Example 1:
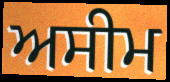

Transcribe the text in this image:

ਅਸੀਮ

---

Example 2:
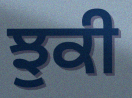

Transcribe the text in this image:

ਝੁਕੀ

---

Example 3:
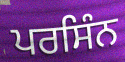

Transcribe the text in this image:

ਪਰਸਿੰਨ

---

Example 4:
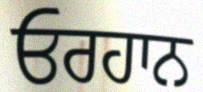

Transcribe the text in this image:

ਓਰਹਾਨ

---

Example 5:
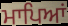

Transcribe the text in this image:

ਮਾਪਿਆਂ